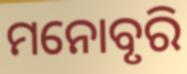
ମନୋବୃରି